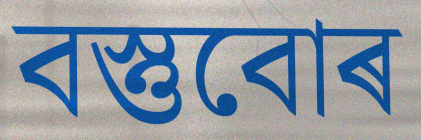
বস্তুবোৰ